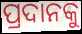
ପ୍ରଦାନକୁ